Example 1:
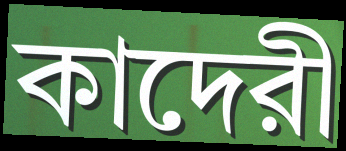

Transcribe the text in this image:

কাদেরী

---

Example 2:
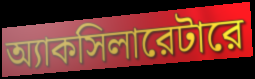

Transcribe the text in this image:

অ্যাকসিলারেটারে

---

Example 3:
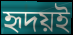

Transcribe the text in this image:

হৃদয়ই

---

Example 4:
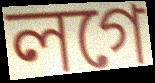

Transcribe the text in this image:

লগে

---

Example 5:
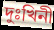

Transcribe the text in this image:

দুঃখিনী